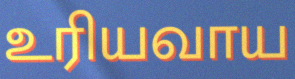
உரியவாய